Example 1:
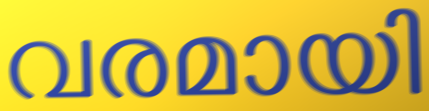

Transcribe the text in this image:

വരമായി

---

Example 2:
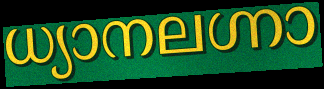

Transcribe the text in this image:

ധ്യാനലഗ്നാ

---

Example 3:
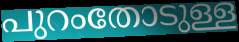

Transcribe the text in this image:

പുറംതോടുള്ള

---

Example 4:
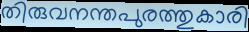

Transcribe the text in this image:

തിരുവനന്തപുരത്തുകാരി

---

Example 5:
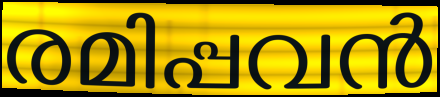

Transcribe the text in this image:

രമിപ്പവൻ